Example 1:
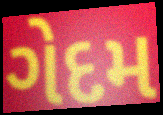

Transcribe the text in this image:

ગેદમ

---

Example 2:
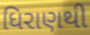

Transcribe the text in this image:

ધિરાણથી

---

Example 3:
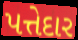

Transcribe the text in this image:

પત્તેદાર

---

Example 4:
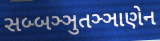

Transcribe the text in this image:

સબ્બઞ્ઞુતઞ્ઞાણેન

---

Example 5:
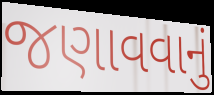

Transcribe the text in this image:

જણાવવાનું